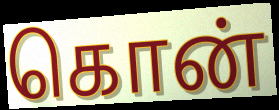
கொன்